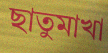
ছাতুমাখা